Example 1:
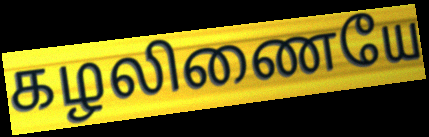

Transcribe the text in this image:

கழலிணையே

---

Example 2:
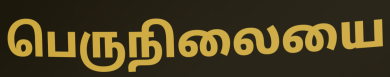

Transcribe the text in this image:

பெருநிலையை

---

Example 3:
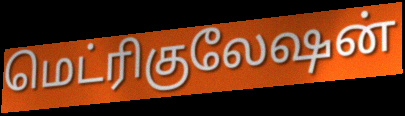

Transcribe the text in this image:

மெட்ரிகுலேஷன்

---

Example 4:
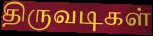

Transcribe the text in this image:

திருவடிகள்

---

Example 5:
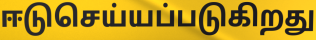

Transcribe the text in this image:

ஈடுசெய்யப்படுகிறது